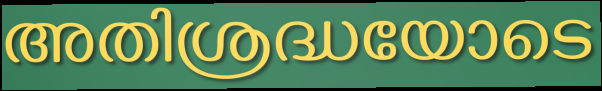
അതിശ്രദ്ധയോടെ